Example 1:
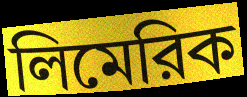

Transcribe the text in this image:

লিমেরিক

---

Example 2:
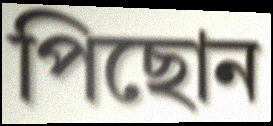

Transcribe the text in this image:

পিছোন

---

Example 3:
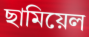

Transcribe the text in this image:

ছামিয়েল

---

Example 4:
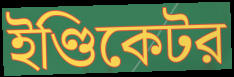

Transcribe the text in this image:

ইণ্ডিকেটর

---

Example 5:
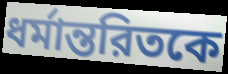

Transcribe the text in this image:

ধর্মান্তরিতকে